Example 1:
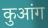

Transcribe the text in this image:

कुआंग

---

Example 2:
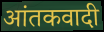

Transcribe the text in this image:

आंतकवादी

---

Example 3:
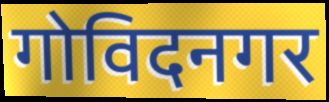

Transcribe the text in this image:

गोविदनगर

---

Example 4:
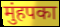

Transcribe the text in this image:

मुंहपका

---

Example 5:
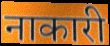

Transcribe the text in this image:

नाकारी